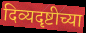
दिव्यदृष्टीच्या